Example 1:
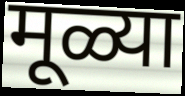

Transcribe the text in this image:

मूळ्या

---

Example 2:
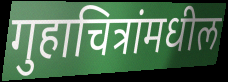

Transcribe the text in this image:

गुहाचित्रांमधील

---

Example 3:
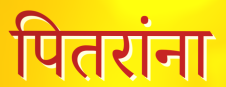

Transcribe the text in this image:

पितरांना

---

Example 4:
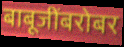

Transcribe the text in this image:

बाबूजींबरोबर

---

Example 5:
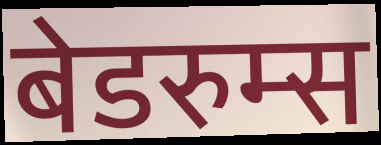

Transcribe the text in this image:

बेडरुम्स